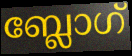
ബ്ലോഗ്